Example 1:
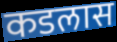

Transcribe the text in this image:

कडलास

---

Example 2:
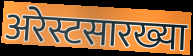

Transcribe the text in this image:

अरेस्टसारख्या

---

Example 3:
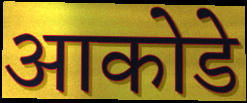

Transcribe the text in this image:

आकोडे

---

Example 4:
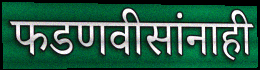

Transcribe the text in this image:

फडणवीसांनाही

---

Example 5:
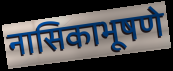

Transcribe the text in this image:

नासिकाभूषणे